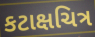
કટાક્ષચિત્ર